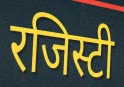
रजिस्टी